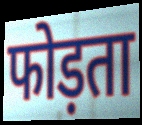
फोड़ता